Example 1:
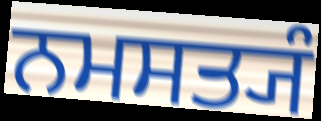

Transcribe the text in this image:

ਨਮਸਤ੍ਯੰ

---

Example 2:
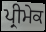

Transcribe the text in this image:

ਪ੍ਰੀਮੇਕ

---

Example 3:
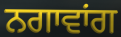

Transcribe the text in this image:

ਨਗਾਵਾਂਗ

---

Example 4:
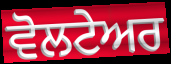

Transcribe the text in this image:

ਵੋਲਟੇਅਰ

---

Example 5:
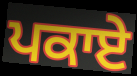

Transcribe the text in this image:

ਪਕਾਏ